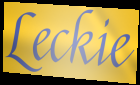
Leckie